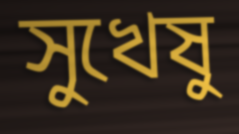
সুখেষু